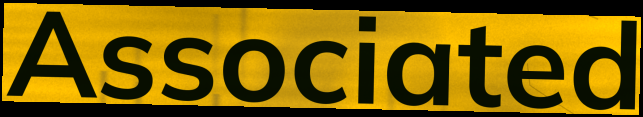
Associated